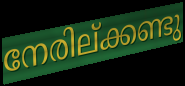
നേരില്ക്കണ്ടു